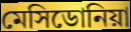
মেসিডোনিয়া